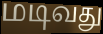
மடிவது